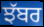
ਝੱਬਰ